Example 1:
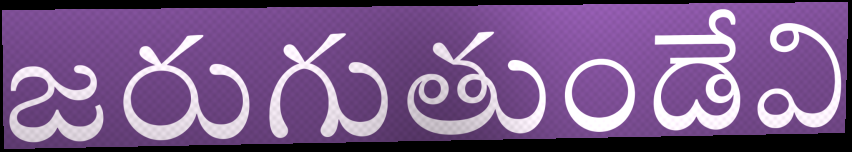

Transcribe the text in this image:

జరుగుతుండేవి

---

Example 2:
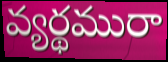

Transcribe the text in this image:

వ్యర్థమురా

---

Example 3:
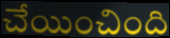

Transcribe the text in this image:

చేయించింది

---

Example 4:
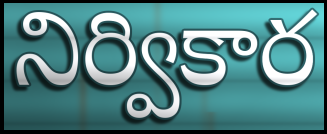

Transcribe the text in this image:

నిర్వికార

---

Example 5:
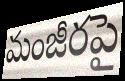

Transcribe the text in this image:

మంజీరపై